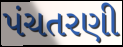
પંચતરણી